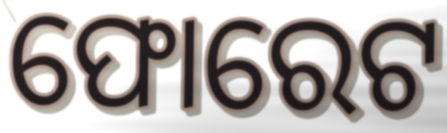
ଫୋରେଟ